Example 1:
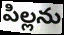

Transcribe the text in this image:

పిల్లను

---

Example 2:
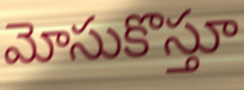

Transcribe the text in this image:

మోసుకొస్తూ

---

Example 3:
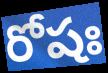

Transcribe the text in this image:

రోషః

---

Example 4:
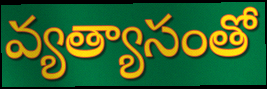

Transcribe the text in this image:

వ్యత్యాసంతో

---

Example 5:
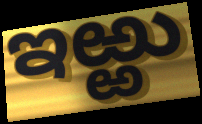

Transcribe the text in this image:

ఇఱ్ఱు